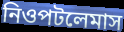
নিওপটলেমাস